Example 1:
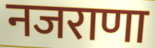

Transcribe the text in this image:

नजराणा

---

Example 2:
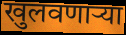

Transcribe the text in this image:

खुलवणाऱ्या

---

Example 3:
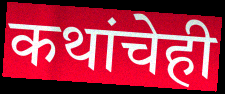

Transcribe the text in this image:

कथांचेही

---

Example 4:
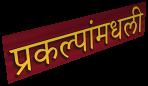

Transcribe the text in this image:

प्रकल्पांमधली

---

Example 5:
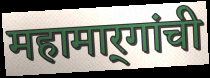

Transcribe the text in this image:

महामार्गांची